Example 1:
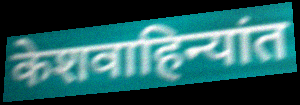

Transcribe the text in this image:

केशवाहिन्यांत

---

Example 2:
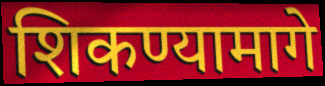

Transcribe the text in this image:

शिकण्यामागे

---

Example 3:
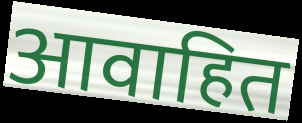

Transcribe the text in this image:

आवाहित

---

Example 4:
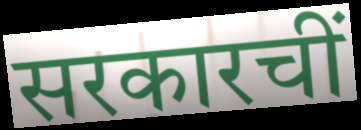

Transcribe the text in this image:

सरकारचीं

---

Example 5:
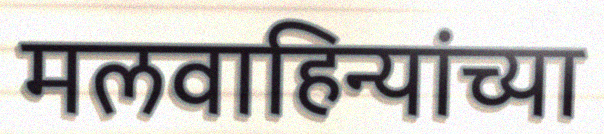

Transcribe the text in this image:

मलवाहिन्यांच्या